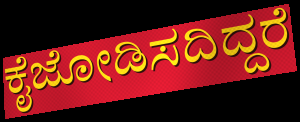
ಕೈಜೋಡಿಸದಿದ್ದರೆ